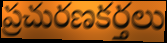
ప్రచురణకర్తలు